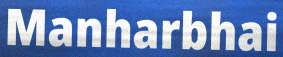
Manharbhai